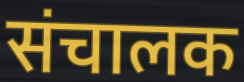
संचालक